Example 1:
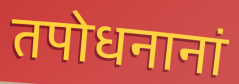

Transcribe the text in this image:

तपोधनानां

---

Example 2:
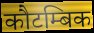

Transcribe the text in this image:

कौटम्बिक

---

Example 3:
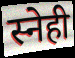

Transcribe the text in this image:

स्नेही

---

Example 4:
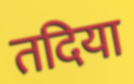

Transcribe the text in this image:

तदिया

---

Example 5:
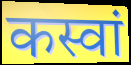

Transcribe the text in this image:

कस्वां